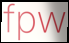
fpw